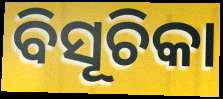
ବିସୂଚିକା